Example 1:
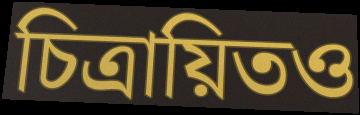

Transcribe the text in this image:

চিত্রায়িতও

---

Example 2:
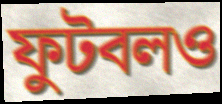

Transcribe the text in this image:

ফুটবলও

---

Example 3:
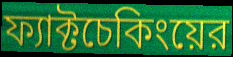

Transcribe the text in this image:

ফ্যাক্টচেকিংয়ের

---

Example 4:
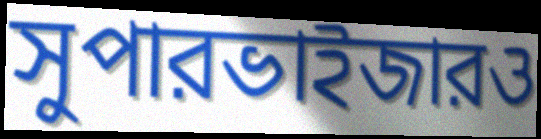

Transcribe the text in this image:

সুপারভাইজারও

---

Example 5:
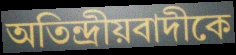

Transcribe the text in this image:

অতিন্দ্রীয়বাদীকে